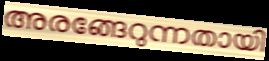
അരങ്ങേറുന്നതായി